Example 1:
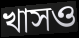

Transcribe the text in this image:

খাসও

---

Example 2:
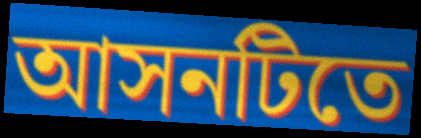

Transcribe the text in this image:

আসনটিতে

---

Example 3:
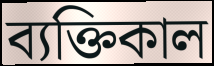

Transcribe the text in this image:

ব্যক্তিকাল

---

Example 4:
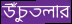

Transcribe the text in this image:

উঁচুতলার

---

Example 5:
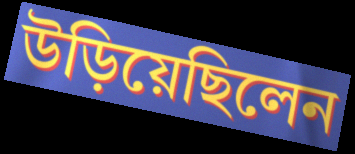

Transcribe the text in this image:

উড়িয়েছিলেন